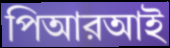
পিআরআই